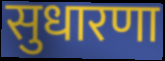
सुधारणा